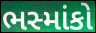
ભસ્માંકો